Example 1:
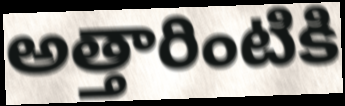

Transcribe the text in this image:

అత్తారింటికి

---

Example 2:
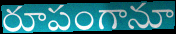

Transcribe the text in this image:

రూపంగానూ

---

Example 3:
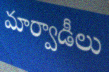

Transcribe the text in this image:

మార్వాడీలు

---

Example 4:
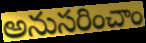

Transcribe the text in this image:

అనుసరించాం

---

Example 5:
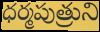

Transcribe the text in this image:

ధర్మపుత్రుని